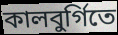
কালবুর্গিতে